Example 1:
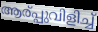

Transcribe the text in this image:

ആര്പ്പുവിളിച്ച്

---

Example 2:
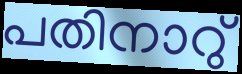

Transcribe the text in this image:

പതിനാറു്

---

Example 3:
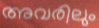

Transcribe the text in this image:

അവരിലും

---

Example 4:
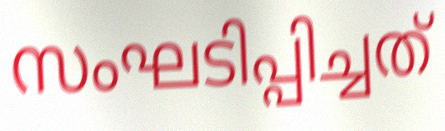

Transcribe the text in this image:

സംഘടിപ്പിച്ചത്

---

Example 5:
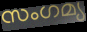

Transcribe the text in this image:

സംഗമ്യ